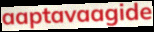
aaptavaagide